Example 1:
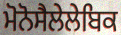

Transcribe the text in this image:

ਮੋਨੋਸੈਲੇਲੇਬਿਕ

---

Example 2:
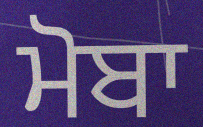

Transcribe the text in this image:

ਮੋਬਾ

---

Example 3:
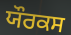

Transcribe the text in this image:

ਯੌਰਕਸ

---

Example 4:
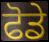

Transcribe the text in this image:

ਫੋਡੇ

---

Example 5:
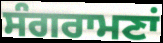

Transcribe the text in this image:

ਸੰਗਰਾਮਣਾਂ